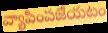
వ్యాపింపజేయటం